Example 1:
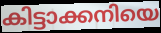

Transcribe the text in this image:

കിട്ടാക്കനിയെ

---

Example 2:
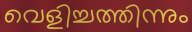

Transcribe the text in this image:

വെളിച്ചത്തിന്നും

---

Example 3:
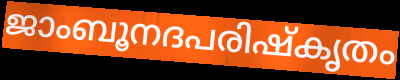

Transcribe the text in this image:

ജാംബൂനദപരിഷ്കൃതം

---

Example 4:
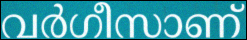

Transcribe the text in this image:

വർഗീസാണ്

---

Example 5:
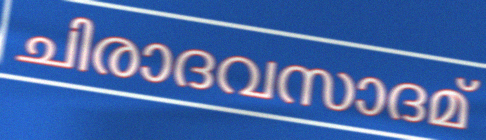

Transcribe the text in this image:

ചിരാദവസാദമ്